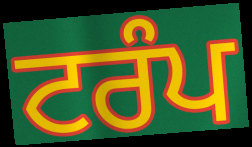
ਟਰੰਪ